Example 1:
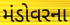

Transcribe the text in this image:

મંડોવરના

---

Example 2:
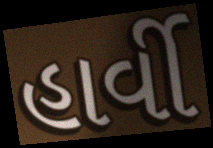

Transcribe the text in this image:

હાર્વી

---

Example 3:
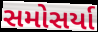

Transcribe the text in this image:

સમોસર્યા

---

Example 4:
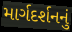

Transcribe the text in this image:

માર્ગદર્શનનું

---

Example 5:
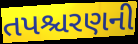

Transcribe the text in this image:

તપશ્ચરણની